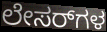
ಲೇಸರ್‌ಗಳ